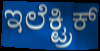
ಇಲೆಕ್ಟ್ರಿಕ್